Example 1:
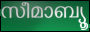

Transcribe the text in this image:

സീമാബ്യൂ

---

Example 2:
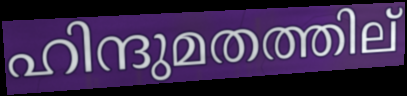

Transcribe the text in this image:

ഹിന്ദുമതത്തില്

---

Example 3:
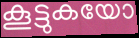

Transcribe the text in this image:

കൂട്ടുകയോ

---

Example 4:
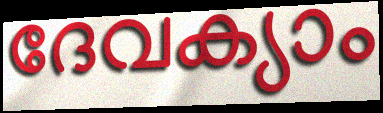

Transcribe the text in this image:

ദേവക്യാം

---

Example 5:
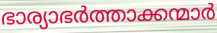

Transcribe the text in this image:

ഭാര്യാഭർത്താക്കന്മാർ